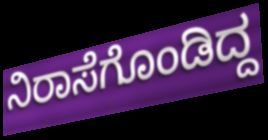
ನಿರಾಸೆಗೊಂಡಿದ್ದ